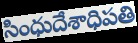
సింధుదేశాధిపతి